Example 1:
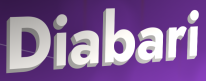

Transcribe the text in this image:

Diabari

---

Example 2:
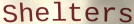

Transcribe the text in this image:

Shelters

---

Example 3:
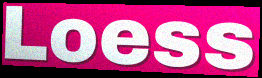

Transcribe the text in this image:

Loess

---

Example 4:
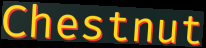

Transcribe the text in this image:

Chestnut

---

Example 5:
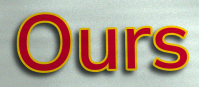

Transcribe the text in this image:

Ours